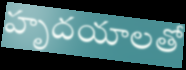
హృదయాలతో